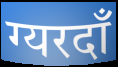
ग्यरदाँ